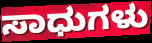
ಸಾಧುಗಳು